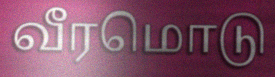
வீரமொடு